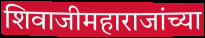
शिवाजीमहाराजांच्या